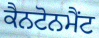
ਕੈਨਟੋਨਮੈਂਟ